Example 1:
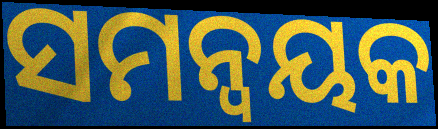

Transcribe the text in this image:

ସମନ୍ୱୟକ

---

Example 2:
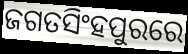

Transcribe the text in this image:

ଜଗତସିଂହପୁରରେ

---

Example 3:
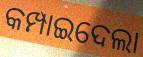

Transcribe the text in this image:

କମ୍ପାଇଦେଲା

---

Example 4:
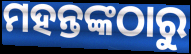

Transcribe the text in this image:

ମହନ୍ତଙ୍କଠାରୁ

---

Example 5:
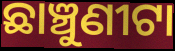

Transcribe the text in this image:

ଛାଞ୍ଚୁଣୀଟା